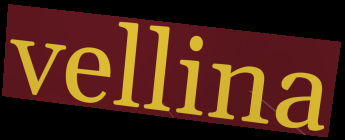
vellina